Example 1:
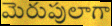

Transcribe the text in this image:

మెరుపులాగా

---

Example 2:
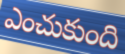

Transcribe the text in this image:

ఎంచుకుంది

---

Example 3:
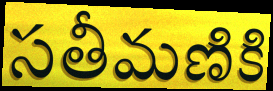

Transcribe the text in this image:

సతీమణికి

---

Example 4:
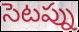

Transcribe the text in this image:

సెటప్ను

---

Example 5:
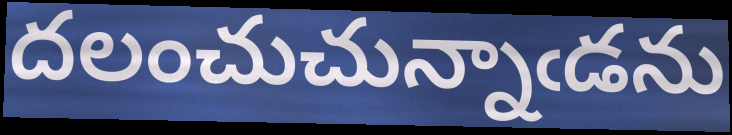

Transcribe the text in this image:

దలంచుచున్నాఁడను